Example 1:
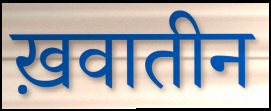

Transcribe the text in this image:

ख़वातीन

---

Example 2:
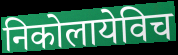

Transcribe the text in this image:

निकोलायेविच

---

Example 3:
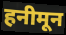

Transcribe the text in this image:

हनीमून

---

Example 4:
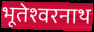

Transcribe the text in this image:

भूतेश्वरनाथ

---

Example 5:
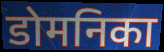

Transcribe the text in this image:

डोमनिका